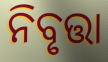
ନିବୃତ୍ତା